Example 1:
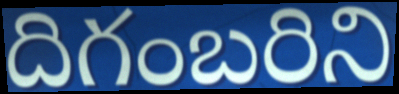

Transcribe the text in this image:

దిగంబరిని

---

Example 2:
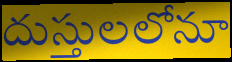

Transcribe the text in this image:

దుస్తులలోనూ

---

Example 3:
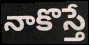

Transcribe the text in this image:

నాకొస్తే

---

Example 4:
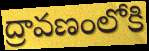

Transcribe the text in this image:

ద్రావణంలోకి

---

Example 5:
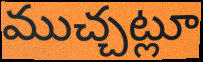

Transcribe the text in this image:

ముచ్చట్లూ